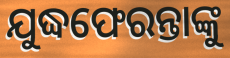
ଯୁଦ୍ଧଫେରନ୍ତାଙ୍କୁ